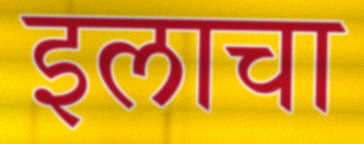
इलाचा